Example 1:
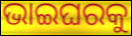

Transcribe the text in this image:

ଭାଇଘରକୁ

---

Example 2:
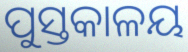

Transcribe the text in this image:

ପୁସ୍ତକାଳୟ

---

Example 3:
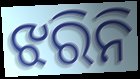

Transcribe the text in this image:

ଝରିନି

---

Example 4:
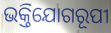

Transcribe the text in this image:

ଭକ୍ତିଯୋଗରୂପୀ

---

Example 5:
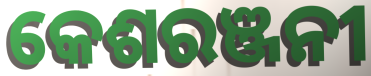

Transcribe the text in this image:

କେଶରଞ୍ଜନୀ